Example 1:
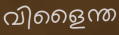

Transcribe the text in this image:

വിളൈന്ത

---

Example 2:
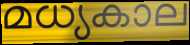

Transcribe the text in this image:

മധ്യകാല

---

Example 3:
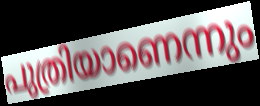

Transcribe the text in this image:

പുത്രിയാണെന്നും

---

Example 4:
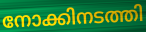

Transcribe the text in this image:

നോക്കിനടത്തി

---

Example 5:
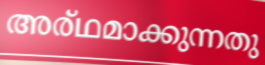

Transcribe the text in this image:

അര്ഥമാക്കുന്നതു